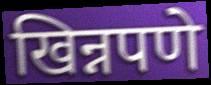
खिन्नपणे